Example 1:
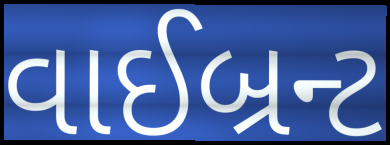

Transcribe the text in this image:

વાઈબ્રન્ટ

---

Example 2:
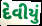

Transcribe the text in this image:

દેવીયું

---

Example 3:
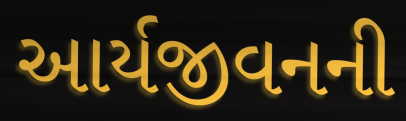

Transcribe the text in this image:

આર્યજીવનની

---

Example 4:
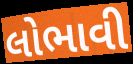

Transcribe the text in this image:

લોભાવી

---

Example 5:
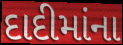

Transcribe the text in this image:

દાદીમાંના